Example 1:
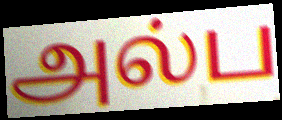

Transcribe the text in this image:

அல்ப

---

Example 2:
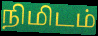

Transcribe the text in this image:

நிமிடம்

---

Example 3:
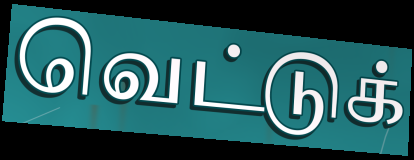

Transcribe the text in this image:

வெட்டுக்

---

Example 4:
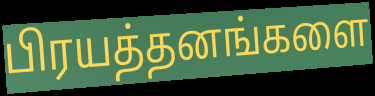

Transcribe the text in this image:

பிரயத்தனங்களை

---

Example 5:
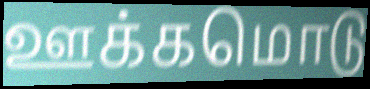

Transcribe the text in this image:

ஊக்கமொடு